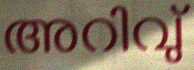
അറിവു്